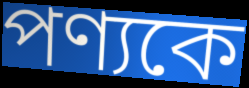
পণ্যকে